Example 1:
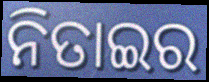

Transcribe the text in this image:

ନିତାଇର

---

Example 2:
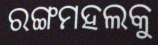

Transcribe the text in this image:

ରଙ୍ଗମହଲକୁ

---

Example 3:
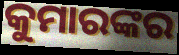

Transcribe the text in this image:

କୁମାରଙ୍କର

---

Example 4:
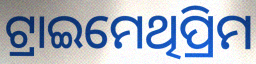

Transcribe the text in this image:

ଟ୍ରାଇମେଥିପ୍ରିମ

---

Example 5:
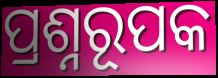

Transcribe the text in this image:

ପ୍ରଶ୍ନରୂପକ